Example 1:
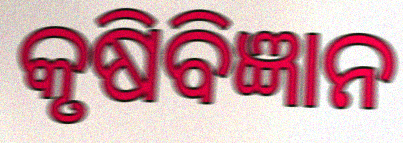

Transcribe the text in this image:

କୃଷିବିଜ୍ଞାନ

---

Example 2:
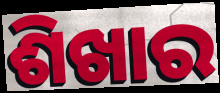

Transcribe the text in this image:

ଶିଖାର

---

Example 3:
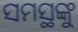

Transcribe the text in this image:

ସମସ୍ଥଙ୍କୁ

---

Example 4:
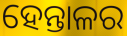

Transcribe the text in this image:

ହେନ୍ତାଳର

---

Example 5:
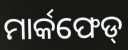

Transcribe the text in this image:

ମାର୍କଫେଡ୍